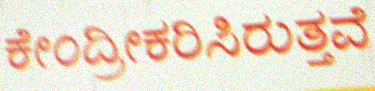
ಕೇಂದ್ರೀಕರಿಸಿರುತ್ತವೆ